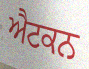
ਐਟਕਨ